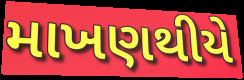
માખણથીયે